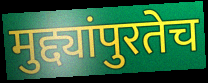
मुद्द्यांपुरतेच